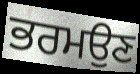
ਭਰਮਉਣ